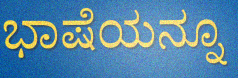
ಭಾಷೆಯನ್ನೂ